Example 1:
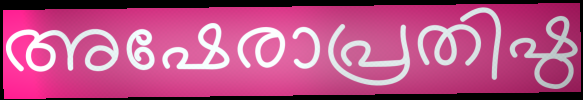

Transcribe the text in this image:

അഷേരാപ്രതിഷ്ഠ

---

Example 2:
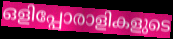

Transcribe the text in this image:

ഒളിപ്പോരാളികളുടെ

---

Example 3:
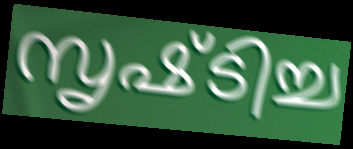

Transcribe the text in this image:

സൃഷ്‌ടിച്ച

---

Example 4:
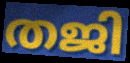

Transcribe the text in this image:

തജി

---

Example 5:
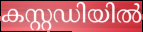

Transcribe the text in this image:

കസ്റ്റഡിയിൽ